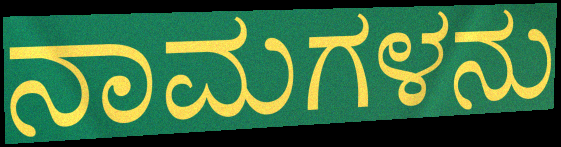
ನಾಮಗಳನು